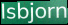
Isbjorn